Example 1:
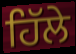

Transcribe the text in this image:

ਹਿੱਲੇ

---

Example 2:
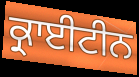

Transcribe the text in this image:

ਕ੍ਰਾਈਟੀਨ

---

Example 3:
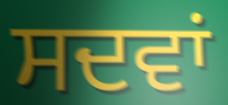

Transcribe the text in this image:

ਸਦਵਾਂ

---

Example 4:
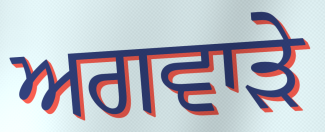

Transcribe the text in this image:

ਅਗਵਾੜੇ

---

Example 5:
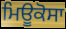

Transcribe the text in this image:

ਮਿਊਕੋਸਾ